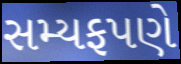
સમ્યફપણે